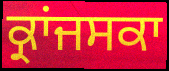
ਕ੍ਰਾਂਜਸਕਾ